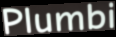
Plumbi